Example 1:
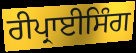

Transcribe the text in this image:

ਰੀਪ੍ਰਾਈਸਿੰਗ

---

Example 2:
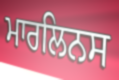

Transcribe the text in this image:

ਮਾਰਲਿਨਸ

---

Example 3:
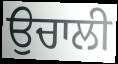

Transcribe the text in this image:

ਉਚਾਲੀ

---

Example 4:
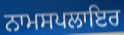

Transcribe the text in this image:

ਨਾਮਸਪਲਾਇਰ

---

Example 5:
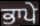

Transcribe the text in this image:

ਭਾਪੇ